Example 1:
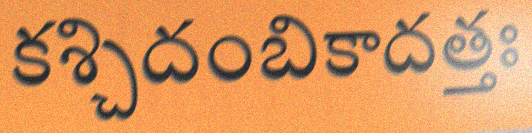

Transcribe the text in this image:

కశ్చిదంబికాదత్తః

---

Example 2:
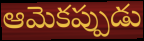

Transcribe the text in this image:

ఆమెకప్పుడు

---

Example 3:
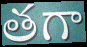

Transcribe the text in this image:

తగా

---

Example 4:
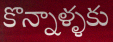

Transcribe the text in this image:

కొన్నాళ్ళకు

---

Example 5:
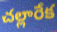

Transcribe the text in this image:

చల్లారేక